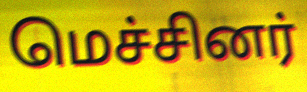
மெச்சினர்